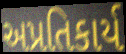
અપ્રતિકાર્ય